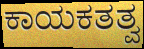
ಕಾಯಕತತ್ವ